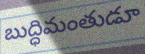
బుద్ధిమంతుడూ